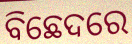
ବିଛେଦରେ